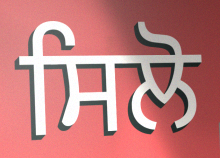
ਸਿਲੋ